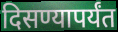
दिसण्यापर्यंत